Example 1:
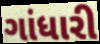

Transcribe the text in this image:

ગાંધારી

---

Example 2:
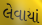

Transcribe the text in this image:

લેવાયાં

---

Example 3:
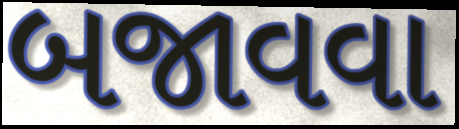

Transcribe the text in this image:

બજાવવા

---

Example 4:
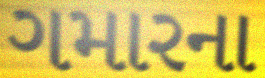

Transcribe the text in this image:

ગમારના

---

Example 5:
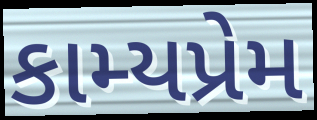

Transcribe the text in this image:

કામ્યપ્રેમ